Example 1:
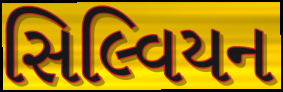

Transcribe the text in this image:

સિલ્વિયન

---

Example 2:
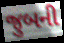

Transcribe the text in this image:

જુબની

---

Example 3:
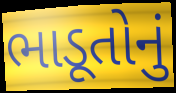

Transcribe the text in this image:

ભાડૂતોનું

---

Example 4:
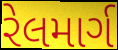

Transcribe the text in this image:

રેલમાર્ગ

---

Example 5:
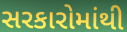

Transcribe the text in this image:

સરકારોમાંથી